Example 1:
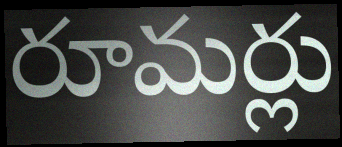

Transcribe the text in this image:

రూమర్లు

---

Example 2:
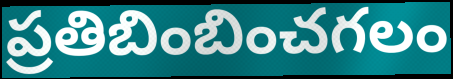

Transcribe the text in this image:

ప్రతిబింబించగలం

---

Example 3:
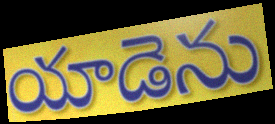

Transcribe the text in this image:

యాడెను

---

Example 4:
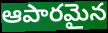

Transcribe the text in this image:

ఆపారమైన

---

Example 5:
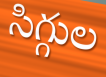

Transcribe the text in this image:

సిగ్గుల